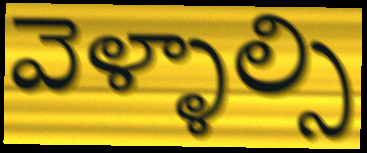
వెళ్ళాల్సి